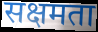
सक्षमता